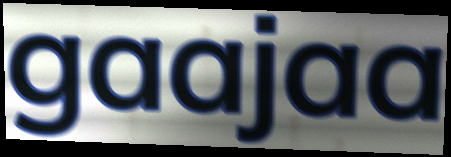
gaajaa